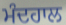
ਮੰਦਹਾਲ